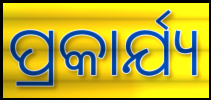
ପ୍ରକାର୍ଯ୍ୟ